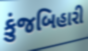
કુંજબિહારી